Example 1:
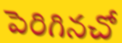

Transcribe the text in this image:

పెరిగినచో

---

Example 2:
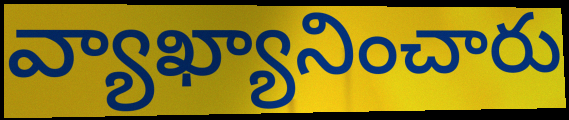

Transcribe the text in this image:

వ్యాఖ్యానించారు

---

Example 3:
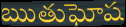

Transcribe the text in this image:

ఋతుఘోష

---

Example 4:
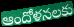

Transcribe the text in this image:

ఆందోళనలకు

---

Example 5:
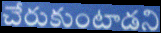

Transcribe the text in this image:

చేరుకుంటాడని